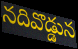
నదివొడ్డున